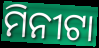
ମିନୀଟା